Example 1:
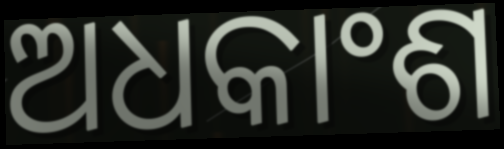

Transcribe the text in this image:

ଅଧକାଂଶ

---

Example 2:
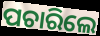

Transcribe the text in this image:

ପଚାରିଲେ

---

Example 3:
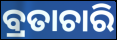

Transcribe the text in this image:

ବ୍ରତାଚାରି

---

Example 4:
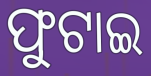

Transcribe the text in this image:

ଫୁଟାଇ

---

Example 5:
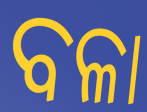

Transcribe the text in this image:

ବଳା